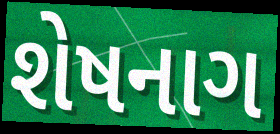
શેષનાગ